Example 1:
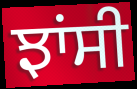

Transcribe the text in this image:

ਝਾਂਸੀ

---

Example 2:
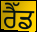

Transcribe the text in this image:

ਰੈੱਡ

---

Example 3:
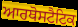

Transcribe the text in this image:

ਆਰਥੋਸਟੈਟਿਕ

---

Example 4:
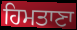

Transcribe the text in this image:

ਹਿਮਤਾਣਾ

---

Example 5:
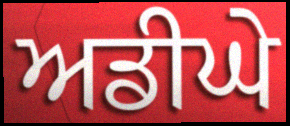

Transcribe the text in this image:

ਅਡੀਘੇ